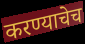
करण्याचेच